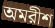
অমরীশ